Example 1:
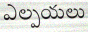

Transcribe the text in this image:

ఎల్పయలు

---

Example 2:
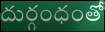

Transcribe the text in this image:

దుర్గంధంతో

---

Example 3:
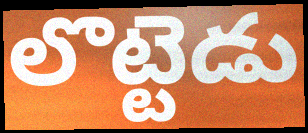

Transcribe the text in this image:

లొట్టెడు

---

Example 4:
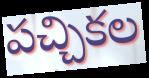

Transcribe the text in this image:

పచ్చికల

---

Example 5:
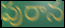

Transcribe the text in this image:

పురాన